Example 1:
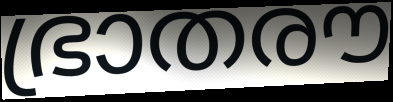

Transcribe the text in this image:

ഭ്രാതരൗ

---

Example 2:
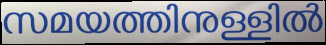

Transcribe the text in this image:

സമയത്തിനുള്ളിൽ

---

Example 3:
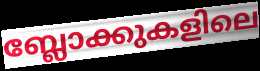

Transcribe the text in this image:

ബ്ലോക്കുകളിലെ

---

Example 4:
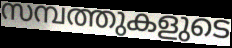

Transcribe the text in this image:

സമ്പത്തുകളുടെ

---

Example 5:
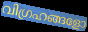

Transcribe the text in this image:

വിഗ്രഹങ്ങളോ